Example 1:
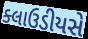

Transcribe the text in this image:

ક્લાઉડીયસે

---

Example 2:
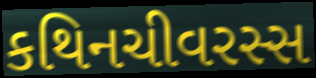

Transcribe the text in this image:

કથિનચીવરસ્સ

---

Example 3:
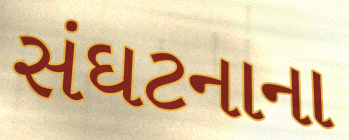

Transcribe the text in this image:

સંઘટનાના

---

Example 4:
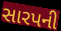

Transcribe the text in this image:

સારપની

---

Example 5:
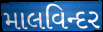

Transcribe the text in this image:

માલવિન્દર